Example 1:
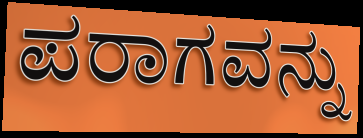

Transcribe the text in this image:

ಪರಾಗವನ್ನು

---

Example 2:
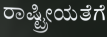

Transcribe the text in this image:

ರಾಷ್ಟ್ರೀಯತೆಗೆ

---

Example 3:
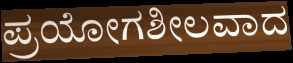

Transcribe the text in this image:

ಪ್ರಯೋಗಶೀಲವಾದ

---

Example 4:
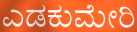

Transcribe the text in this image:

ಎಡಕುಮೇರಿ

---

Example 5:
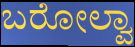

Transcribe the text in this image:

ಬರೋಲ್ವಾ